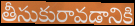
తీసుకురావడానికి